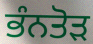
ਭੰਨਤੋੜ